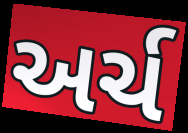
અર્ચ